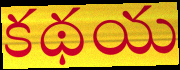
కథయ